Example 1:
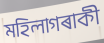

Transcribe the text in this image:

মহিলাগৰাকী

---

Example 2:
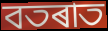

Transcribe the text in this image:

বতৰাত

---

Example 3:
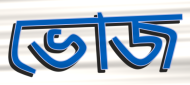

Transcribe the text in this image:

ভোজ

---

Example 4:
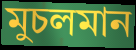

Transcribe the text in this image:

মুচলমান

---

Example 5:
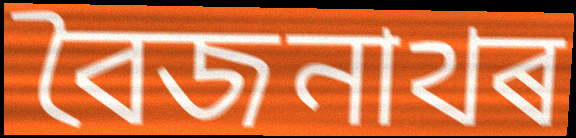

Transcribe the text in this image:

বৈজনাথৰ